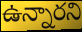
ఉన్నారని